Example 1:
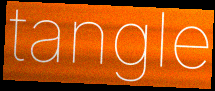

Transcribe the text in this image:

tangle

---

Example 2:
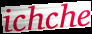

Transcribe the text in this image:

ichche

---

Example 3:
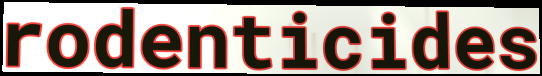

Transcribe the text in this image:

rodenticides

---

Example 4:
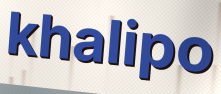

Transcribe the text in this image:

khalipo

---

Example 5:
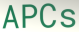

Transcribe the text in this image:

APCs